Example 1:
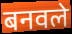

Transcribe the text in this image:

बनवले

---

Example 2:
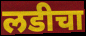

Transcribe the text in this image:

लडीचा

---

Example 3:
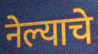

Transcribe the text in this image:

नेल्याचे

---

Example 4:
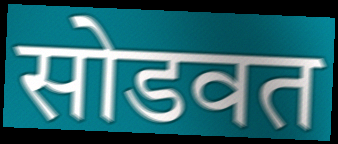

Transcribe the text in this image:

सोडवत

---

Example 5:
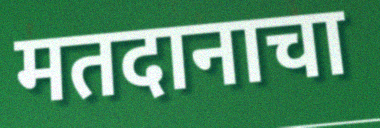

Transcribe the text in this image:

मतदानाचा